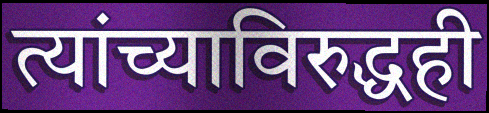
त्यांच्याविरुद्धही